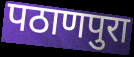
पठाणपुरा